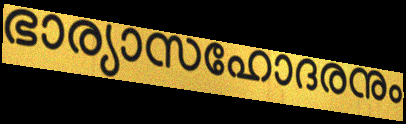
ഭാര്യാസഹോദരനും